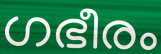
ഗഭീരം